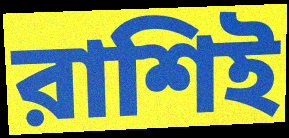
রাশিই